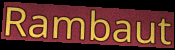
Rambaut